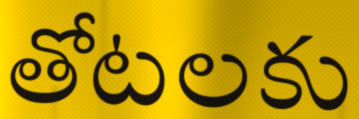
తోటలకు